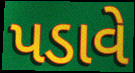
પડાવે